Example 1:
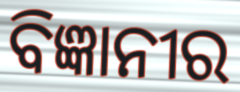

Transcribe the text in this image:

ବିଜ୍ଞାନୀର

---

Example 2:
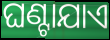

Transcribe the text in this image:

ଘଣ୍ଟାଯାଏ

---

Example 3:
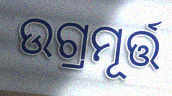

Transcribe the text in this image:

ଉଗ୍ରମୂର୍ତ୍ତ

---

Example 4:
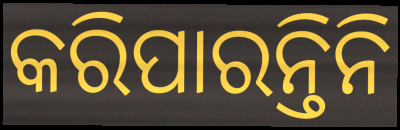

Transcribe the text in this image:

କରିପାରନ୍ତିନି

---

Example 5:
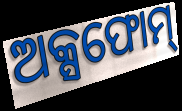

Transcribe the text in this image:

ଅକ୍ସଫୋମ୍